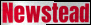
Newstead